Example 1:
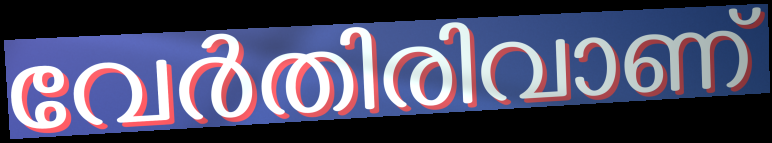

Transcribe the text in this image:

വേർതിരിവാണ്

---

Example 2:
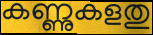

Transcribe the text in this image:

കണ്ണുകളതു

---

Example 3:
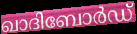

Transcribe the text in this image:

ഖാദിബോർഡ്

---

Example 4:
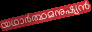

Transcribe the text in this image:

യഥാർത്ഥമനുഷ്യൻ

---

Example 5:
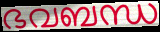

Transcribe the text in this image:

ഭവബന്ധ